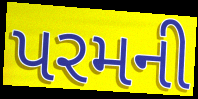
પરમની